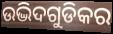
ଉଦ୍ଭିଦଗୁଡିକର